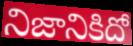
నిజానికిదో